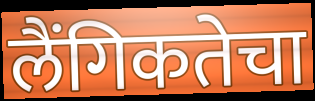
लैंगिकतेचा